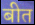
बीत